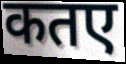
कतए